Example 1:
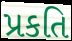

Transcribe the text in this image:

પ્રકતિ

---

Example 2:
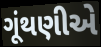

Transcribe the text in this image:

ગૂંથણીએ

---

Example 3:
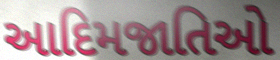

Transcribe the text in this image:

આદિમજાતિઓ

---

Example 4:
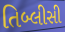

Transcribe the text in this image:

તિબ્લીસી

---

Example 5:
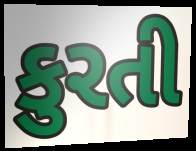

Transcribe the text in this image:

કુરતી